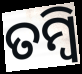
ତମ୍ବି